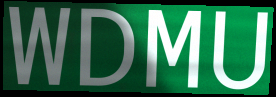
WDMU